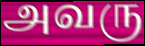
அவரு